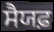
ਸੈਯਫ਼